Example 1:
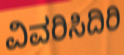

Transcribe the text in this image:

ವಿವರಿಸಿದಿರಿ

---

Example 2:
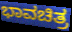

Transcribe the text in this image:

ಭಾವಚಿತ್ರ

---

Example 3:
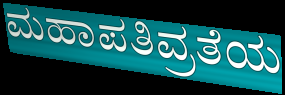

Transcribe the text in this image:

ಮಹಾಪತಿವ್ರತೆಯ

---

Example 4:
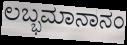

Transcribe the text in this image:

ಲಬ್ಭಮಾನಾನಂ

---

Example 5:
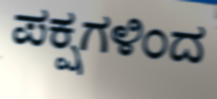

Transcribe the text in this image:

ಪಕ್ಷಗಳಿಂದ